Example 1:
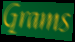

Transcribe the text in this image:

Grams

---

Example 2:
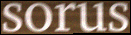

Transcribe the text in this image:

sorus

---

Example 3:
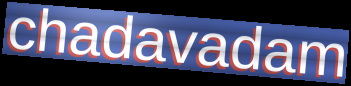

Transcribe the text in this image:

chadavadam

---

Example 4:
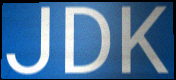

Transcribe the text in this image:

JDK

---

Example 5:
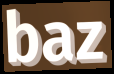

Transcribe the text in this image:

baz